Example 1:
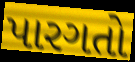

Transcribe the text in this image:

પારગતો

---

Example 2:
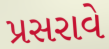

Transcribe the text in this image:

પ્રસરાવે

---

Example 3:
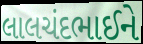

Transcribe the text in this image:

લાલચંદભાઈને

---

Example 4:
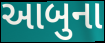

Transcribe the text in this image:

આબુના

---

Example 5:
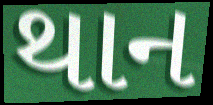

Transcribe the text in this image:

થાન